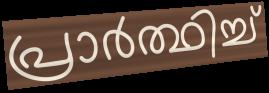
പ്രാർത്ഥിച്ച്